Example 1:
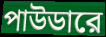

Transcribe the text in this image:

পাউডারে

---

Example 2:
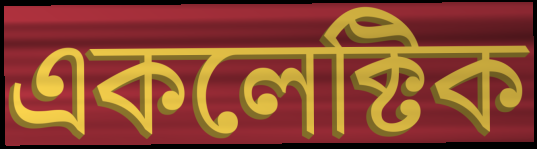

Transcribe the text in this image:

একলেক্টিক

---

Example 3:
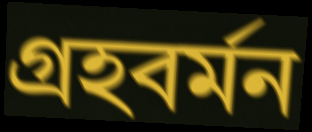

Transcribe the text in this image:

গ্রহবর্মন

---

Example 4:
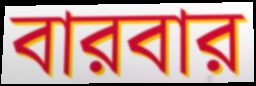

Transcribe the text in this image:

বারবার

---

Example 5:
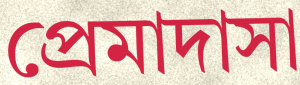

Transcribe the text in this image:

প্রেমাদাসা